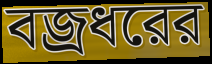
বজ্রধরের